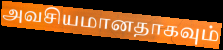
அவசியமானதாகவும்